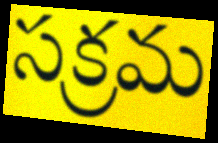
సక్రమ